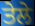
ਤੇਲੇ